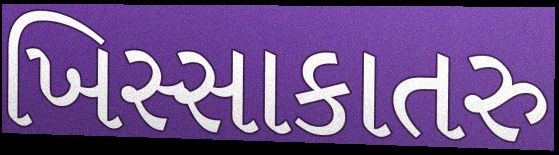
ખિસ્સાકાતરુ